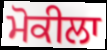
ਮੋਕੀਲਾ